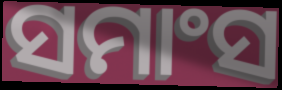
ସମାଂସ